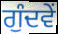
ਗੁੰਦਵੇਂ